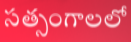
సత్సంగాలలో